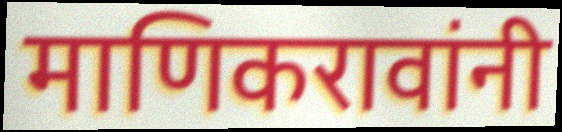
माणिकरावांनी